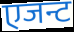
एजन्ट